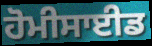
ਹੋਮੀਸਾਈਡ